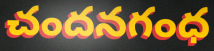
చందనగంధ